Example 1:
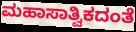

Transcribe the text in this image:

ಮಹಾಸಾತ್ವಿಕದಂತೆ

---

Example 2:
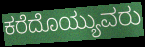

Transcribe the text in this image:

ಕರೆದೊಯ್ಯುವರು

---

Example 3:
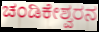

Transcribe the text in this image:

ಚಂಡಿಕೇಶ್ವರನ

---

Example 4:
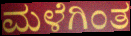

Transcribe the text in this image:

ಮಳೆಗಿಂತ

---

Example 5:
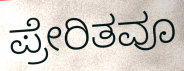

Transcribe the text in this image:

ಪ್ರೇರಿತವೂ